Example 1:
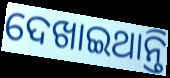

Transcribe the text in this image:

ଦେଖାଇଥାନ୍ତି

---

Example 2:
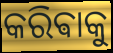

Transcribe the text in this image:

କରିଵାକୁ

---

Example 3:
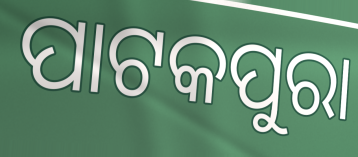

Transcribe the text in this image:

ପାଟକପୁରା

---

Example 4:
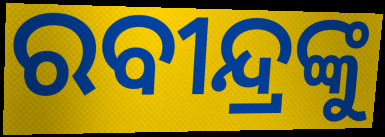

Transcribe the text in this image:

ରବୀନ୍ଦ୍ରଙ୍କୁ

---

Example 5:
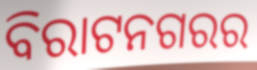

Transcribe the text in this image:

ବିରାଟନଗରର